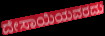
ದೇಸಾಯಿಯವರದು